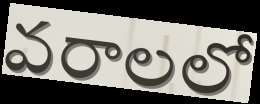
వరాలలో